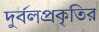
দুর্বলপ্রকৃতির